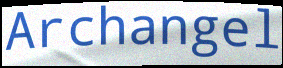
Archangel